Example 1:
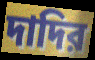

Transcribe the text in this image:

দাদির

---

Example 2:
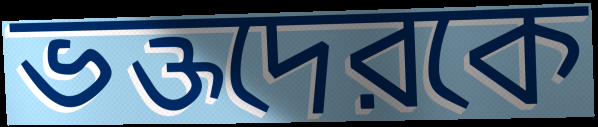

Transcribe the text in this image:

ভক্তদেরকে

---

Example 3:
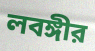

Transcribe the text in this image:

লবঙ্গীর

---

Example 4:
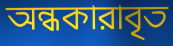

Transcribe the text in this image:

অন্ধকারাবৃত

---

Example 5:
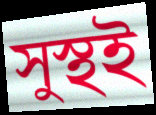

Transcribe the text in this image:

সুস্থই